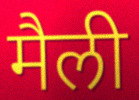
मैली